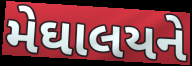
મેઘાલયને